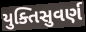
યુક્તિસુવર્ણ